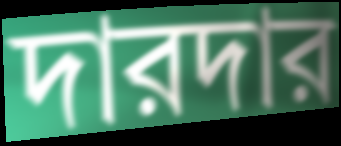
দারদার